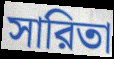
সারিতা